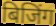
बिजिंग